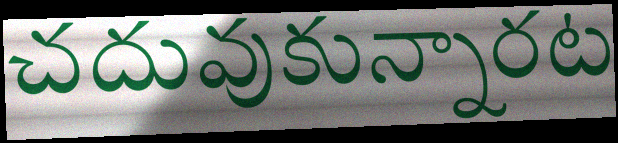
చదువుకున్నారట